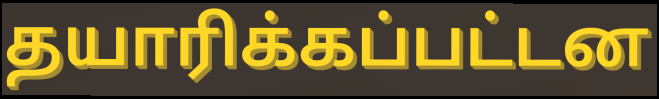
தயாரிக்கப்பட்டன